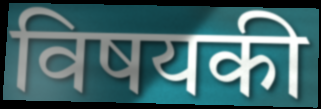
विषयकी